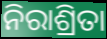
ନିରାଶ୍ରିତା